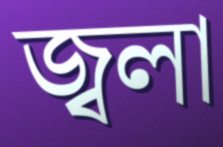
জ্বলা